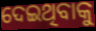
ଦେଇଥିବାକୁ